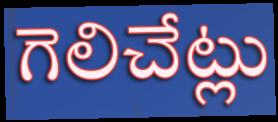
గెలిచేట్లు